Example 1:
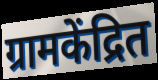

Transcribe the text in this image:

ग्रामकेंद्रित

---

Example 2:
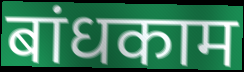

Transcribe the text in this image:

बांधकाम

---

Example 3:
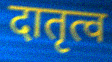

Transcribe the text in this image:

दातृत्व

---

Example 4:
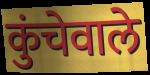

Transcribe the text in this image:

कुंचेवाले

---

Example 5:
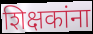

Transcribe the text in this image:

शिक्षकांना